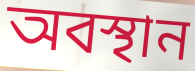
অবস্থান